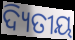
ଦ୍ଯିତୀୟ